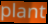
plant